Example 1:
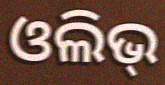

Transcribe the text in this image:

ଓଲିଭ୍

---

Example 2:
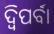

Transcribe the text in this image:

ଦ୍ଵିପର୍ବା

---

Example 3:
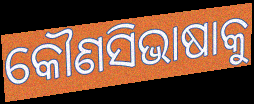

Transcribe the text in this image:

କୌଣସିଭାଷାକୁ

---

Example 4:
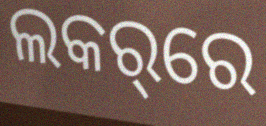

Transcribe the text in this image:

ଲକର୍‌ରେ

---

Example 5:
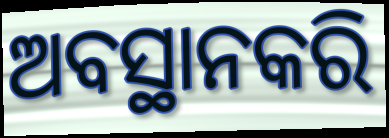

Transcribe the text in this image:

ଅବସ୍ଥାନକରି